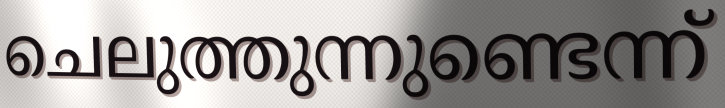
ചെലുത്തുന്നുണ്ടെന്ന്